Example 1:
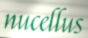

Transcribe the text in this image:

nucellus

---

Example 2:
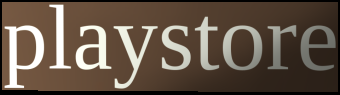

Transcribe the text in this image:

playstore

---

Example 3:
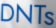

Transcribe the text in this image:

DNTs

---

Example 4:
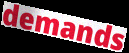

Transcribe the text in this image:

demands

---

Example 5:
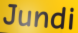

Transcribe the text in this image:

Jundi